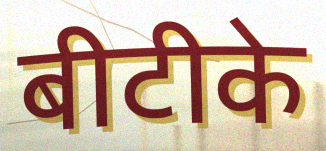
बीटीके